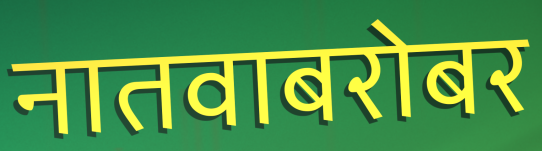
नातवाबरोबर